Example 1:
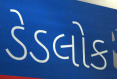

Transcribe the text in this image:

ડેડલોક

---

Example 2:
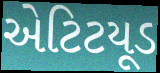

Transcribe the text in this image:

એટિટયૂડ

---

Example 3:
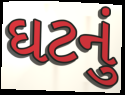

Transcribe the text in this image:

ઘટનું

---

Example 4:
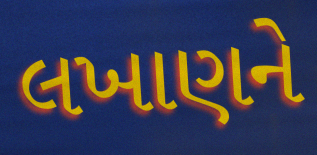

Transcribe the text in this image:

લખાણને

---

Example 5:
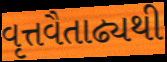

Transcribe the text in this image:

વૃત્તવૈતાઢ્યથી